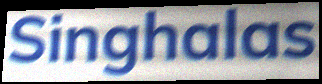
Singhalas